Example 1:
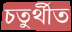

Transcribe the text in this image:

চতুৰ্থীত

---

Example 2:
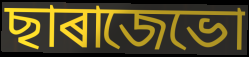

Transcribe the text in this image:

ছাৰাজেভো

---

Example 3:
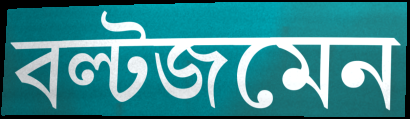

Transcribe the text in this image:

বল্টজমেন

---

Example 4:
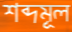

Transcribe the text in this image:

শব্দমূল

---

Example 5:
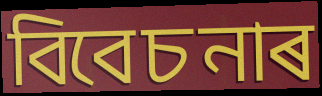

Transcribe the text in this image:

বিবেচনাৰ